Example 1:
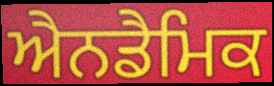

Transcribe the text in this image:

ਐਨਡੈਮਿਕ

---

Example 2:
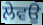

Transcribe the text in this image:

ਲੇਵਉ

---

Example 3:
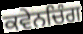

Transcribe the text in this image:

ਕਵੇਨਚਿੰਗ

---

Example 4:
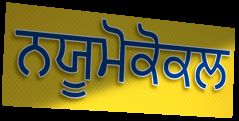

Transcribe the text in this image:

ਨਯੂਮੋਕੋਕਲ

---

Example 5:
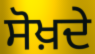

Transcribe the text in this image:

ਸੋਖ਼ਦੇ